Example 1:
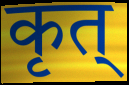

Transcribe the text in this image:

कृत्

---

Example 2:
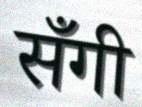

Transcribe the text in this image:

सँगी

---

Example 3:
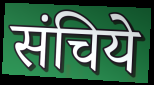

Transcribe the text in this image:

संचिये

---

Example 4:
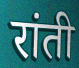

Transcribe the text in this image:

रांती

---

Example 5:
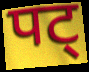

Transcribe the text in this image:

पट्